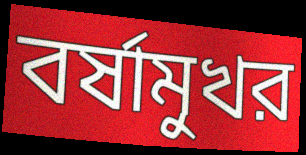
বর্ষামুখর